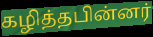
கழித்தபின்னர்